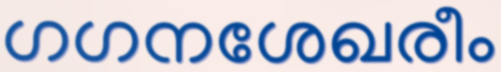
ഗഗനശേഖരീം